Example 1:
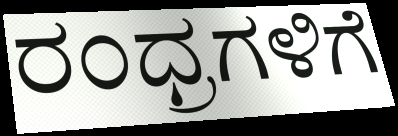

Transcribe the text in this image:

ರಂಧ್ರಗಳಿಗೆ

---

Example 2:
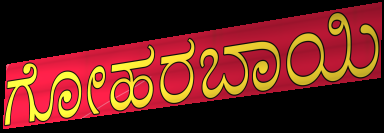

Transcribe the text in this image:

ಗೋಹರಬಾಯಿ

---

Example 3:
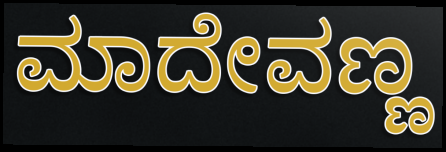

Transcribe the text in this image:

ಮಾದೇವಣ್ಣ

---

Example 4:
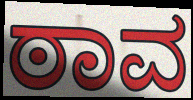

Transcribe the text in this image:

ಠಾವ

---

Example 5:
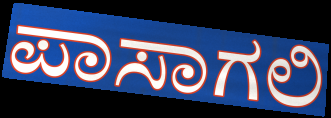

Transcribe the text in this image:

ಪಾಸಾಗಲಿ